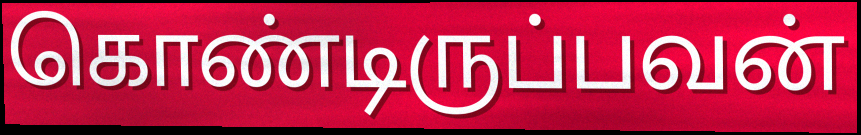
கொண்டிருப்பவன்